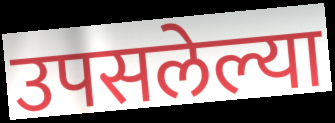
उपसलेल्या